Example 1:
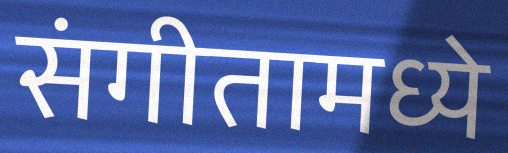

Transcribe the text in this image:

संगीतामध्ये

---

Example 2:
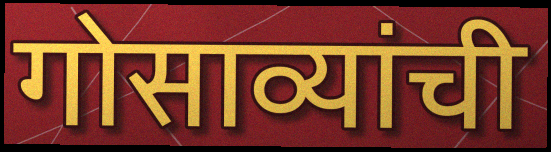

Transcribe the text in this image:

गोसाव्यांची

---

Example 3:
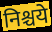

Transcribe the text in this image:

निश्चये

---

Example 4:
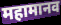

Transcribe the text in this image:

महामानव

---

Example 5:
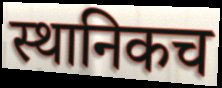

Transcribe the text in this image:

स्थानिकच